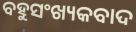
ବହୁସଂଖ୍ୟକବାଦ